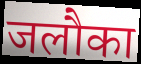
जलौका